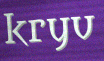
kryu